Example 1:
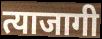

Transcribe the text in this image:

त्याजागी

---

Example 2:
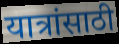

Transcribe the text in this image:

यात्रांसाठी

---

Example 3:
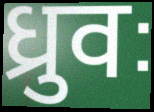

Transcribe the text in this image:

ध्रुवः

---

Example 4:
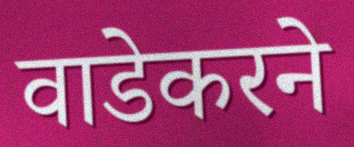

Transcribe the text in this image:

वाडेकरने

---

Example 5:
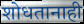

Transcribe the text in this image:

शोधतानाही